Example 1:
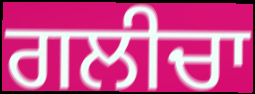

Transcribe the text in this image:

ਗਲੀਚਾ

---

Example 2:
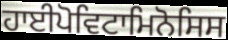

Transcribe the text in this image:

ਹਾਈਪੋਵਿਟਾਮਿਨੋਸਿਸ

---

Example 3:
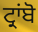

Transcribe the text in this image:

ਟ੍ਰਾਂਬੋ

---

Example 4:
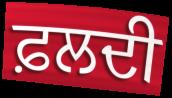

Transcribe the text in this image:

ਫ਼ਲਦੀ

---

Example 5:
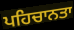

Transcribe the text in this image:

ਪਹਿਚਾਨਤਾ